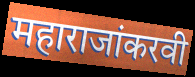
महाराजांकरवी